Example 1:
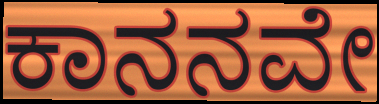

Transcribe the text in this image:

ಕಾನನವೇ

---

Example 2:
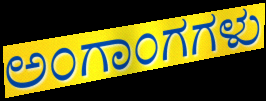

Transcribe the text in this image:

ಅಂಗಾಂಗಗಳು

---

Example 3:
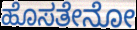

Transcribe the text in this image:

ಹೊಸತೇನೋ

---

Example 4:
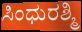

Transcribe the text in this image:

ಸಿಂಧುರಶ್ಮಿ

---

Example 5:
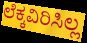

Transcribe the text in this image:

ಲೆಕ್ಕವಿರಿಸಿಲ್ಲ